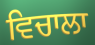
ਵਿਚਾਲਾ